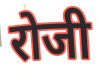
रोजी